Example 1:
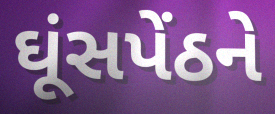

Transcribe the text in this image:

ઘૂંસપેંઠને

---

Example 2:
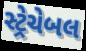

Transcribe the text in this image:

સ્ટ્રેચેબલ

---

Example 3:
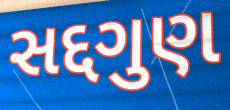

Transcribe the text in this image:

સદ્દગુણ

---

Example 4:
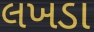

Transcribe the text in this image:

લખડા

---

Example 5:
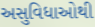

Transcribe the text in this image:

અસુવિધાઓથી